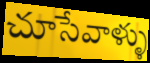
చూసేవాళ్ళు